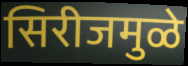
सिरीजमुळे